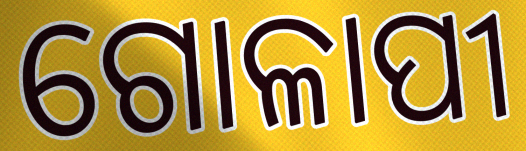
ଗୋଳାପୀ